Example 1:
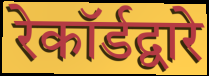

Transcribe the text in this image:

रेकॉर्डद्वारे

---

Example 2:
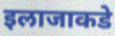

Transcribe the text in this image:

इलाजाकडे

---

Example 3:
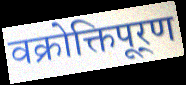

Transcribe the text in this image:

वक्रोक्तिपूर्ण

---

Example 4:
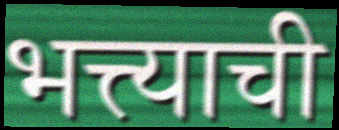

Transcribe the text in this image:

भत्त्याची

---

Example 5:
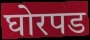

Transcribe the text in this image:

घोरपड